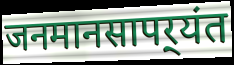
जनमानसापर्यंत